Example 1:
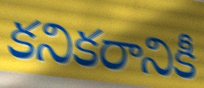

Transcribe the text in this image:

కనికరానికీ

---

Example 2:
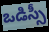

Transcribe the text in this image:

ఒడిస్సీ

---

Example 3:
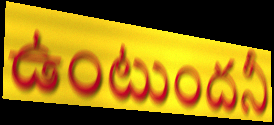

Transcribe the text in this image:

ఉంటుందనీ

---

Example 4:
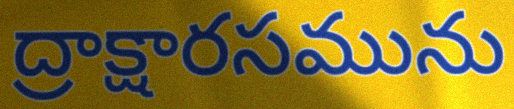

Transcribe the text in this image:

ద్రాక్షారసమును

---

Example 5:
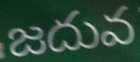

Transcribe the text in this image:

జదువ